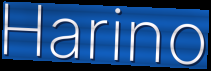
Harino